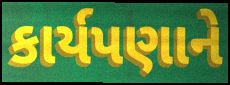
કાર્યપણાને